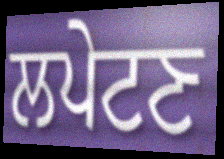
ਲਪੇਟਣ